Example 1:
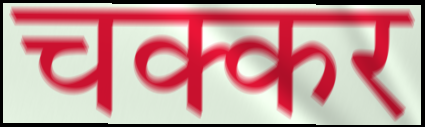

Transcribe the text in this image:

चक्कर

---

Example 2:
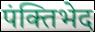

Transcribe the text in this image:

पंक्तिभेद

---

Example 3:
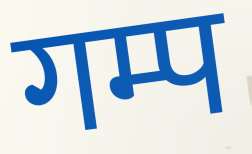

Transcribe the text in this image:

गम्प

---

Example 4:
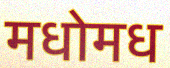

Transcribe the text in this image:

मधोमध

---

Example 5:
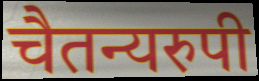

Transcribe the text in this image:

चैतन्यरुपी